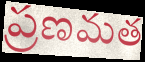
ప్రణమత